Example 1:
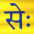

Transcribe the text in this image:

सेः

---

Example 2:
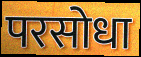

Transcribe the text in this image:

परसोधा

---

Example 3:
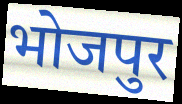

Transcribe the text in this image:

भोजपुर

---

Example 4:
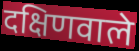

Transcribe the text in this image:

दक्षिणवाले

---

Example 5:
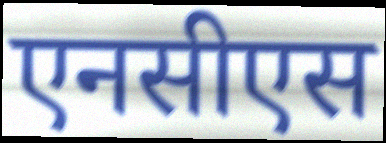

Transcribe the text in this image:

एनसीएस